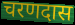
चरणदास